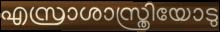
എസ്രാശാസ്ത്രിയോടു